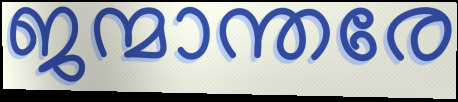
ജന്മാന്തരേ